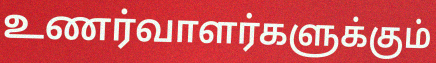
உணர்வாளர்களுக்கும்